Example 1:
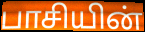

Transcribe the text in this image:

பாசியின்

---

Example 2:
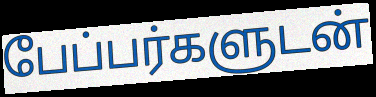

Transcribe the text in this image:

பேப்பர்களுடன்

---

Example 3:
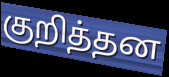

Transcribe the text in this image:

குறித்தன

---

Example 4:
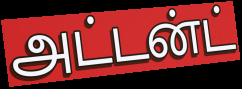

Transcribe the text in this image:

அட்டன்ட்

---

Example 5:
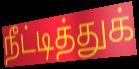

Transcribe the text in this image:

நீட்டித்துக்